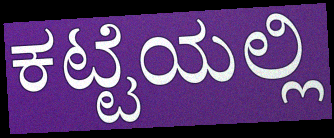
ಕಟ್ಟೆಯಲ್ಲಿ